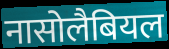
नासोलैबियल